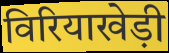
विरियाखेड़ी